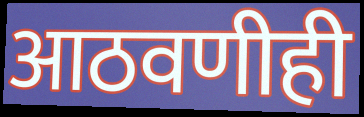
आठवणीही